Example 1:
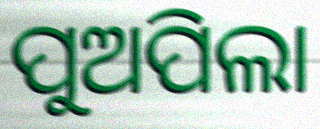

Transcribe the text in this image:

ପୁଅପିଲା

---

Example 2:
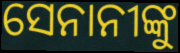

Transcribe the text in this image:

ସେନାନୀଙ୍କୁ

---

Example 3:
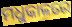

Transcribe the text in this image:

ମଧୁକାଳରେ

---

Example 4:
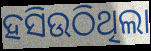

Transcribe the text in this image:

ହସିଉଠିଥିଲା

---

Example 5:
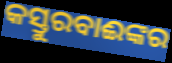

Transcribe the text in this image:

କସ୍ତୁରବାଈଙ୍କର